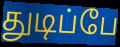
துடிப்பே